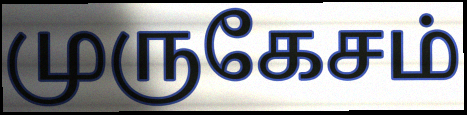
முருகேசம்